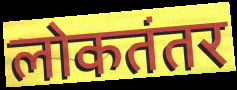
लोकतंतर